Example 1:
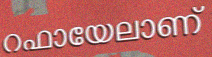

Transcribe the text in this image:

റഫായേലാണ്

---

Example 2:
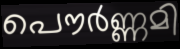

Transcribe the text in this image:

പൌർണ്ണമി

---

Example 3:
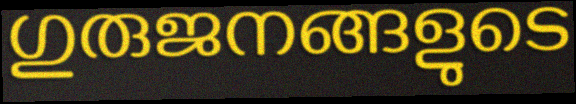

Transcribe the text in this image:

ഗുരുജനങ്ങളുടെ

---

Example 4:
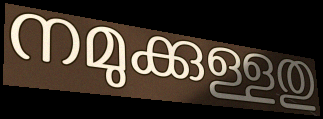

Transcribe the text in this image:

നമുക്കുള്ളതു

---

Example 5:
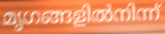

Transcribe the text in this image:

മൃഗങ്ങളിൽനിന്ന്